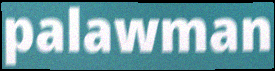
palawman